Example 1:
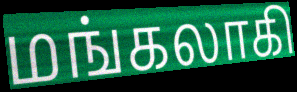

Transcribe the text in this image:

மங்கலாகி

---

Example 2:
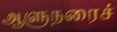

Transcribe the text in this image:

ஆளுநரைச்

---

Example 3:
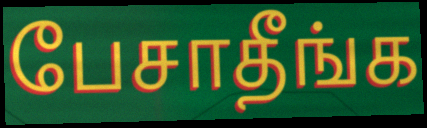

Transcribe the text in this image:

பேசாதீங்க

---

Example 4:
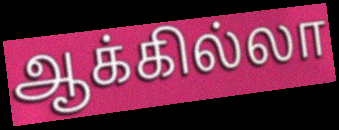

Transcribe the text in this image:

ஆக்கில்லா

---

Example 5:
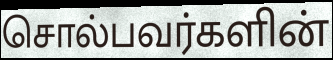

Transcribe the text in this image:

சொல்பவர்களின்